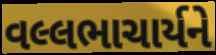
વલ્લભાચાર્યને